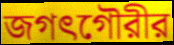
জগৎগৌরীর